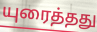
யுரைத்தது